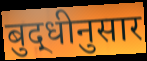
बुद्धीनुसार